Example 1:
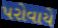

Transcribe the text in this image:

પરોવાયે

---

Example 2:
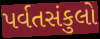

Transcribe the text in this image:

પર્વતસંકુલો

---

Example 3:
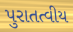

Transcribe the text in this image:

પુરાતત્વીય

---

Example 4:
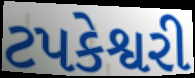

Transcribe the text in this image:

ટપકેશ્વરી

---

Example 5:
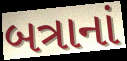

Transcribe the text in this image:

બત્રાનાં